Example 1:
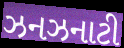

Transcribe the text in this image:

ઝનઝનાટી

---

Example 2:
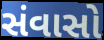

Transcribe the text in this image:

સંવાસો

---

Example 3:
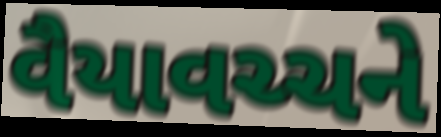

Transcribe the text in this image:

વૈયાવચ્ચને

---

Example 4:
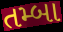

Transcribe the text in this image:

તમ્બા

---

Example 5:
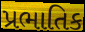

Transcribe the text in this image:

પ્રભાતિક